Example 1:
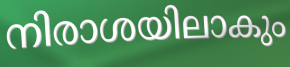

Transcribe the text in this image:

നിരാശയിലാകും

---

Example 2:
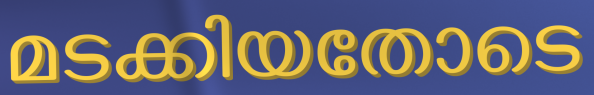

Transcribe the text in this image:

മടക്കിയതോടെ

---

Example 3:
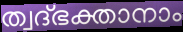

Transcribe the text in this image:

ത്വദ്ഭക്താനാം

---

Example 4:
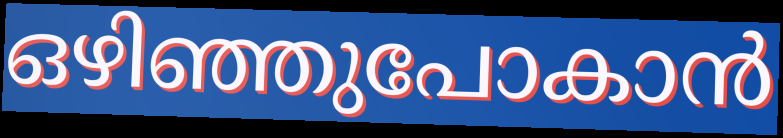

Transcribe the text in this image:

ഒഴിഞ്ഞുപോകാൻ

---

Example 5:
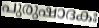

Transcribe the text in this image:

പുരുഷാദകഃ